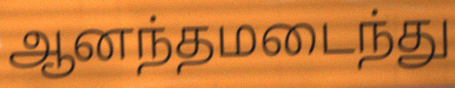
ஆனந்தமடைந்து